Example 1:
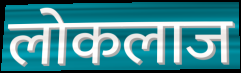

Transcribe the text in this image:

लोकलाज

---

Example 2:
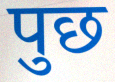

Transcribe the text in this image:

पुछ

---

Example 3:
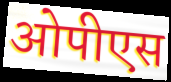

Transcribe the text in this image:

ओपीएस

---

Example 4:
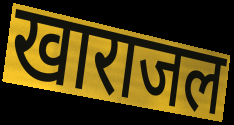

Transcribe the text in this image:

खाराजल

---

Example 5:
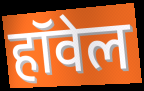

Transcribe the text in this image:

हॉवेल